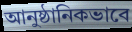
আনুষ্ঠানিকভাবে